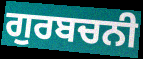
ਗੁਰਬਚਨੀ